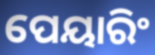
ପେୟାରିଂ